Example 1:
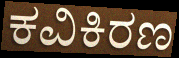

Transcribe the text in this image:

ಕವಿಕಿರಣ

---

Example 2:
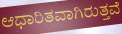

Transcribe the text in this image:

ಆಧಾರಿತವಾಗಿರುತ್ತವೆ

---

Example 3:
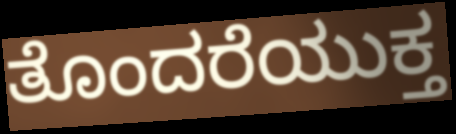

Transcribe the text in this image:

ತೊಂದರೆಯುಕ್ತ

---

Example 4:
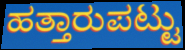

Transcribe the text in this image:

ಹತ್ತಾರುಪಟ್ಟು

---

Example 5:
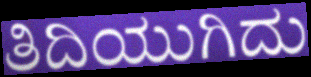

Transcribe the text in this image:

ತಿದಿಯುಗಿದು